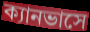
ক্যানভাসে